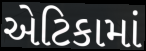
એટિકામાં